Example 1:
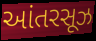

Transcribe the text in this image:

આંતરસૂઝ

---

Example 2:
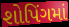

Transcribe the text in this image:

શોપિંગમાં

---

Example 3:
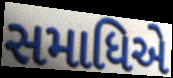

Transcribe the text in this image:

સમાધિએ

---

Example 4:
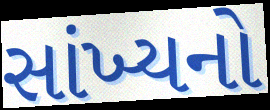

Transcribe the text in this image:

સાંખ્યનો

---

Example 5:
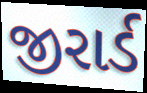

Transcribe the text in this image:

જીરાર્ડ